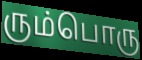
ரும்பொரு